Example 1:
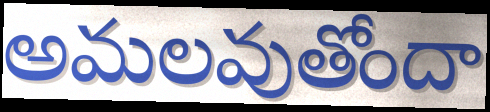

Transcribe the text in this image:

అమలవుతోందా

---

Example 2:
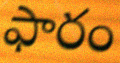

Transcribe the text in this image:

ఫారం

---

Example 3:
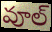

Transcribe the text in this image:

వూల్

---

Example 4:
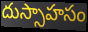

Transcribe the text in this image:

దుస్సాహసం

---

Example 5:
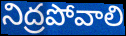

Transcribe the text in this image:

నిద్రపోవాలి